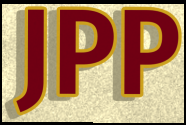
JPP